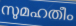
സുമഹതീം